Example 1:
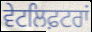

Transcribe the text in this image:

ਵੇਟਲਿਫ਼ਟਰਾਂ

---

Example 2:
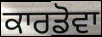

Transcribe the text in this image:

ਕਾਰਡੋਵਾ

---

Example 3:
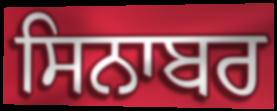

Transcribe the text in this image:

ਸਿਨਾਬਰ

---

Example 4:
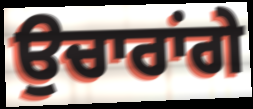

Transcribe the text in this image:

ਉਚਾਰਾਂਗੇ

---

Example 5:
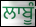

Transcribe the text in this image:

ਲਾਬੂੰ